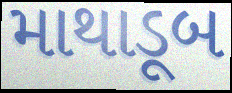
માથાડૂબ